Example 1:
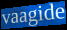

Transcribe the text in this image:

vaagide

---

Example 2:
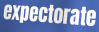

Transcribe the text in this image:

expectorate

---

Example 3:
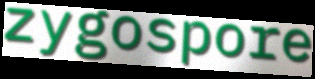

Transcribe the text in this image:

zygospore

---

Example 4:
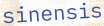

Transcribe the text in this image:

sinensis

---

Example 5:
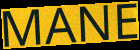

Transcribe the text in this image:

MANE